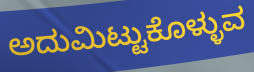
ಅದುಮಿಟ್ಟುಕೊಳ್ಳುವ